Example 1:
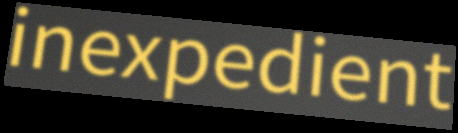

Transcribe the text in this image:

inexpedient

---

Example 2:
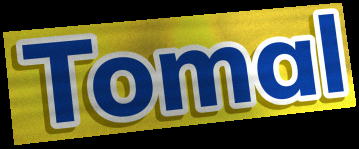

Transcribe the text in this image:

Tomal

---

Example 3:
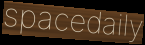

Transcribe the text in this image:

spacedaily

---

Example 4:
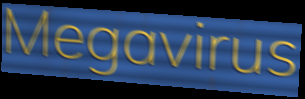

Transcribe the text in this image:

Megavirus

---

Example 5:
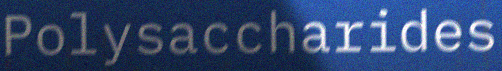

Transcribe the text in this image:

Polysaccharides